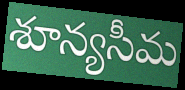
శూన్యసీమ